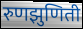
रुणझुणिती